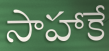
సాహాకే